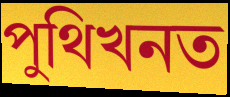
পুথিখনত